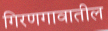
गिरणगावातील